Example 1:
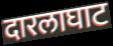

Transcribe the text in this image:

दारलाघाट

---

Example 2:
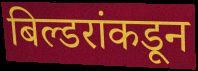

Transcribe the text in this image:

बिल्डरांकडून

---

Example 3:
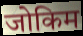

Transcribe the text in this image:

जोकिम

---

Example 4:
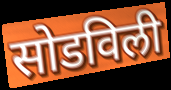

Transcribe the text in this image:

सोडविली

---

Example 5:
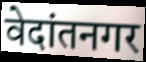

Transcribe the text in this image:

वेदांतनगर